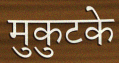
मुकुटके